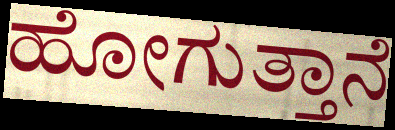
ಹೋಗುತ್ತಾನೆ